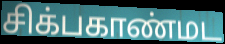
சிக்பகாண்மட